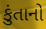
કુંતાનો